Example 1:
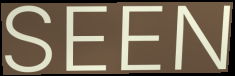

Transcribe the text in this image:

SEEN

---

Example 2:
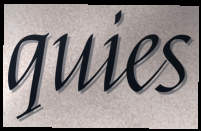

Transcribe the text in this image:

quies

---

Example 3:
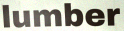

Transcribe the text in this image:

lumber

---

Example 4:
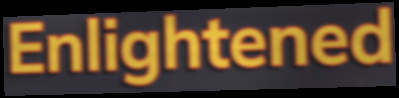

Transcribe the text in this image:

Enlightened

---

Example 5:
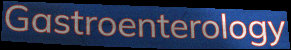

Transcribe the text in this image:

Gastroenterology